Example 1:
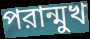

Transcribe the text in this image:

পরান্মুখ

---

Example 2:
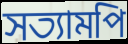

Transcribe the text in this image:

সত্যামপি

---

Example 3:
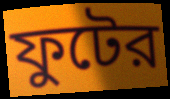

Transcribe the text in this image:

ফুটের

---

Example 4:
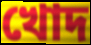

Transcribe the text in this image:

খোদ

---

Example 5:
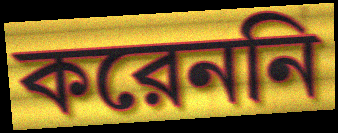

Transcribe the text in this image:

করেননি